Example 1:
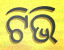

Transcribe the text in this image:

ଟିଭି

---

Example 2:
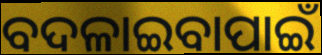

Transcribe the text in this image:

ବଦଳାଇବାପାଇଁ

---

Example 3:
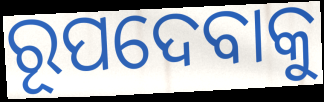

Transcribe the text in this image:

ରୂପଦେବାକୁ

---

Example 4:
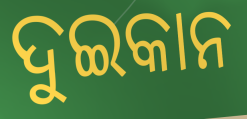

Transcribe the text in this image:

ଦୁଇକାନ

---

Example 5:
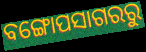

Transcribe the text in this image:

ବଙ୍ଗୋପସାଗରରୁ